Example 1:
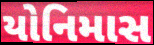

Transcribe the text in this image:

યોનિમાસ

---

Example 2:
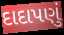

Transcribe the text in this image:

દાદાપણું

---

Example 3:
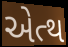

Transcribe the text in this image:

એત્થ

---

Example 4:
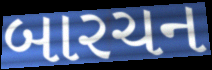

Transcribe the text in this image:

બારચન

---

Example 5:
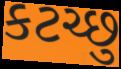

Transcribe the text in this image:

કટચ્છુ